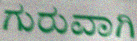
ಗುರುವಾಗಿ